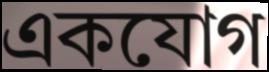
একযোগ